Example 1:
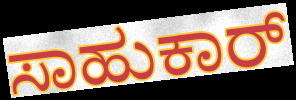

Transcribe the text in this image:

ಸಾಹುಕಾರ್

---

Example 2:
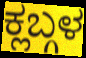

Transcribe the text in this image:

ಕ್ಲಬ್ಗಳ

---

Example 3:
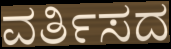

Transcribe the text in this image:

ವರ್ತಿಸದ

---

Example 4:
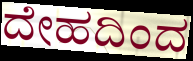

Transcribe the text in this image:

ದೇಹದಿಂದ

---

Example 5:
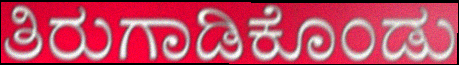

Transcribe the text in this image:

ತಿರುಗಾಡಿಕೊಂಡು